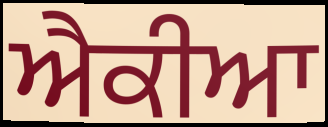
ਐਕੀਆ